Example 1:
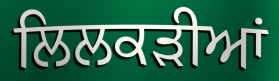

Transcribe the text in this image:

ਲਿਲਕੜੀਆਂ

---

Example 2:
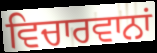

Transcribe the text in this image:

ਵਿਚਾਰਵਾਨਾਂ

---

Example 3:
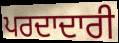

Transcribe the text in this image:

ਪਰਦਾਦਾਰੀ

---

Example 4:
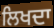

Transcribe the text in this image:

ਲਿਖਦਾ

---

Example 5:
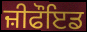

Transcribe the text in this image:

ਜ਼ੀਫੌਇਡ